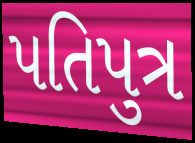
પતિપુત્ર